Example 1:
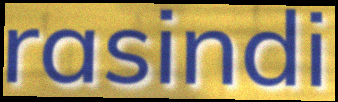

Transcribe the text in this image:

rasindi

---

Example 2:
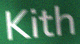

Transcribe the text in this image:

Kith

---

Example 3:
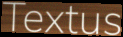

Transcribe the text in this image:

Textus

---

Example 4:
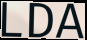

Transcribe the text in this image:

LDA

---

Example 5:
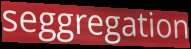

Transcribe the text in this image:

seggregation